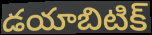
డయాబిటిక్